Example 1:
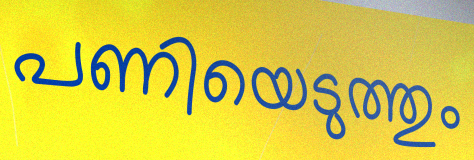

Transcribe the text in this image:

പണിയെടുത്തും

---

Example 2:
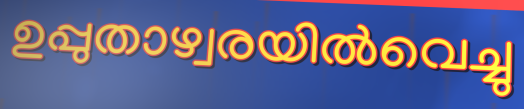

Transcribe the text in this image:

ഉപ്പുതാഴ്വരയിൽവെച്ചു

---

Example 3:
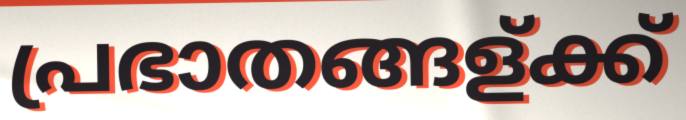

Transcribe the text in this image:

പ്രഭാതങ്ങള്ക്ക്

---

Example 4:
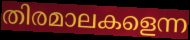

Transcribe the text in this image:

തിരമാലകളെന്ന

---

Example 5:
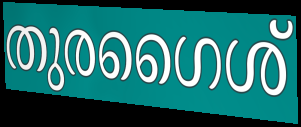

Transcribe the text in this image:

തുരഗൈശ്